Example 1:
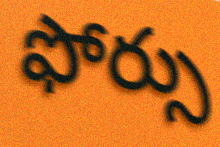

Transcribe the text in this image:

ఫోర్సు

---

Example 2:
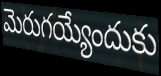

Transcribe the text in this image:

మెరుగయ్యేందుకు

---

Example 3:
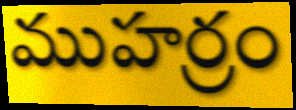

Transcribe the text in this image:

ముహర్రం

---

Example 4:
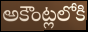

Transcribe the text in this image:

అకౌంట్లలోకి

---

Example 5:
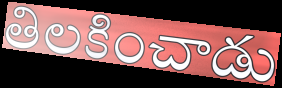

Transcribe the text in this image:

తిలకించాడు